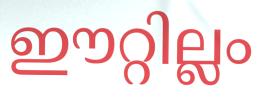
ഈറ്റില്ലം